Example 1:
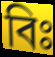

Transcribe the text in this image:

বিঃ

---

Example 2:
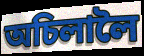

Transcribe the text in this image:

অচিলালৈ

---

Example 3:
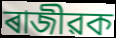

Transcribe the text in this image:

ৰাজীৱক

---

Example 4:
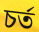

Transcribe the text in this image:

চৰ্ত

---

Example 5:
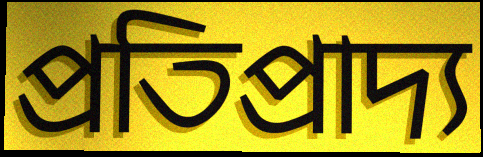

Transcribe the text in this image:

প্ৰতিপ্ৰাদ্য